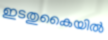
ഇടതുകൈയിൽ